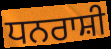
ਧਨਰਾਸ਼ੀ